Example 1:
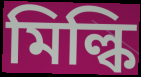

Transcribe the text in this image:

মিল্কি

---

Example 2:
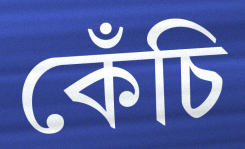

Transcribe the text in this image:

কেঁচি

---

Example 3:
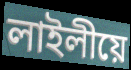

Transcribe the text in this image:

লাইলীয়ে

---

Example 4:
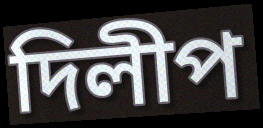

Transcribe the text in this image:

দিলীপ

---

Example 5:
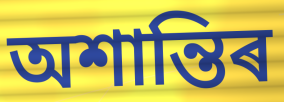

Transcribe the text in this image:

অশান্তিৰ